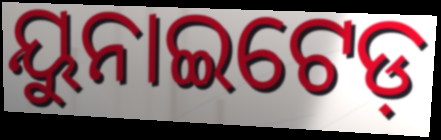
ୟୁନାଇଟେଡ଼